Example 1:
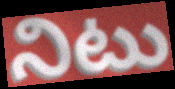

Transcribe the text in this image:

నిటు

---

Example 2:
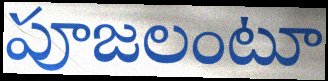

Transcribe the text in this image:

పూజలంటూ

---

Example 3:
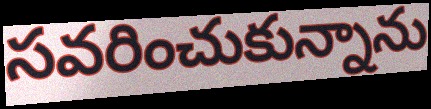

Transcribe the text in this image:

సవరించుకున్నాను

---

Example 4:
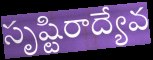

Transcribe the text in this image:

సృష్టిరాద్యేవ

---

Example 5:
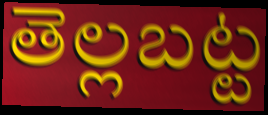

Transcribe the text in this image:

తెల్లబట్ట